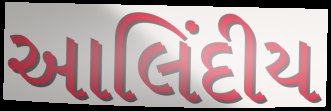
આલિંદીય